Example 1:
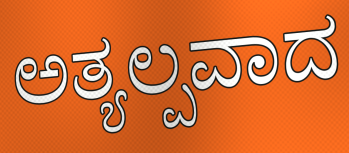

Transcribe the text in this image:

ಅತ್ಯಲ್ಪವಾದ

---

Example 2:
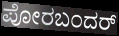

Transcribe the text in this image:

ಪೋರಬಂದರ್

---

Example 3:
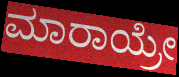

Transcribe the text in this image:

ಮಾರಾಯ್ರೇ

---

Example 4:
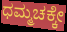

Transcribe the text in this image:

ಧಮ್ಮಚಕ್ಕೇ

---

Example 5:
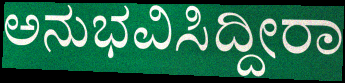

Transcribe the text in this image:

ಅನುಭವಿಸಿದ್ದೀರಾ